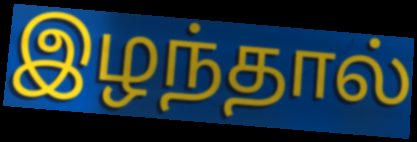
இழந்தால்